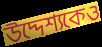
উদ্দেশ্যকেও